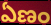
ఏణం